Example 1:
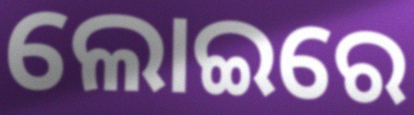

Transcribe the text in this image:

ଲୋଇରେ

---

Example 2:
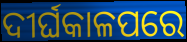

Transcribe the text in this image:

ଦୀର୍ଘକାଳପରେ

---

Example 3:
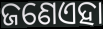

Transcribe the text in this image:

ଜଣେଏହା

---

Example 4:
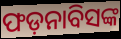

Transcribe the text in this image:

ଫଡ଼ନାବିସଙ୍କ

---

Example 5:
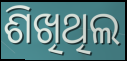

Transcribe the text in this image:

ଶିଖିଥିଲ